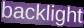
backlight